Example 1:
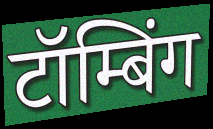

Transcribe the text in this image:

टॉम्बिंग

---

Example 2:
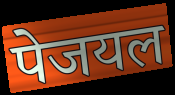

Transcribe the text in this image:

पेजयल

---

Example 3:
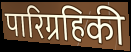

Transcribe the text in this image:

पारिग्रहिकी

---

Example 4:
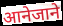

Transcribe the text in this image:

आनेजाने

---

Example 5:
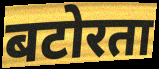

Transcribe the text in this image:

बटोरता